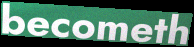
becometh